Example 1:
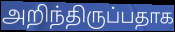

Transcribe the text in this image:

அறிந்திருப்பதாக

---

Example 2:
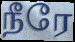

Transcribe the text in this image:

நீரே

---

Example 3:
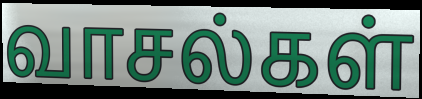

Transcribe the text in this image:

வாசல்கள்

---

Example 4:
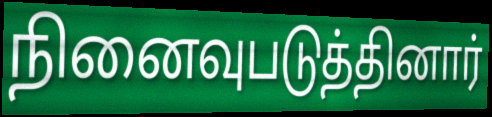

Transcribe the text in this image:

நினைவுபடுத்தினார்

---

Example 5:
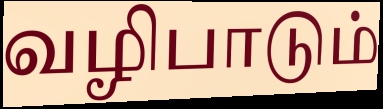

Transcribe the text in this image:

வழிபாடும்